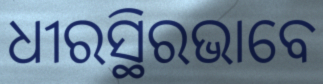
ଧୀରସ୍ଥିରଭାବେ